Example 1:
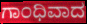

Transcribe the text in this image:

ಗಾಂಧಿವಾದ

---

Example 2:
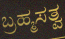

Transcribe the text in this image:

ಬ್ರಹ್ಮಸತ್ವ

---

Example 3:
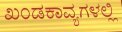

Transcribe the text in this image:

ಖಂಡಕಾವ್ಯಗಳಲ್ಲಿ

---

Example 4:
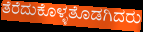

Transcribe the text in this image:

ತೆರೆದುಕೊಳ್ಳತೊಡಗಿದರು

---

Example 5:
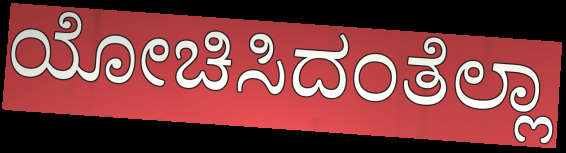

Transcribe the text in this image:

ಯೋಚಿಸಿದಂತೆಲ್ಲಾ